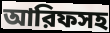
আরিফসহ